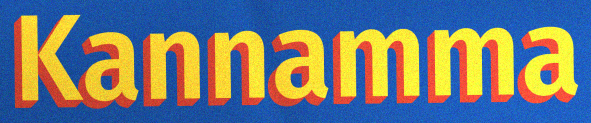
Kannamma